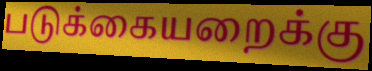
படுக்கையறைக்கு